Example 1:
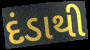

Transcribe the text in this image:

દંડાથી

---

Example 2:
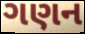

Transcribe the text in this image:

ગણન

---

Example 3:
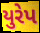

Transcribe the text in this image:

યુરેપ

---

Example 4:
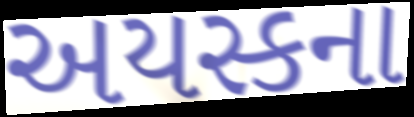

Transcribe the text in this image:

અયસ્કના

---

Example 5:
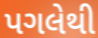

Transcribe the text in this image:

પગલેથી